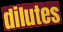
dilutes